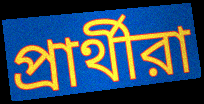
প্রার্থীরা